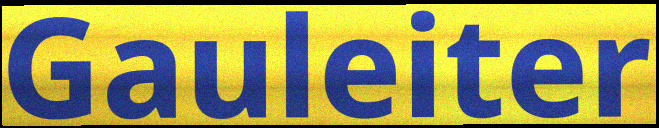
Gauleiter